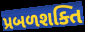
પ્રબળશક્તિ